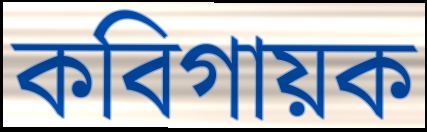
কবিগায়ক